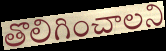
తొలిగించాలని